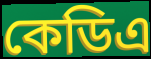
কেডিএ